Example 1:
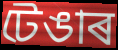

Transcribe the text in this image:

টেঙাৰ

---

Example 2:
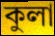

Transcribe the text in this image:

কুলা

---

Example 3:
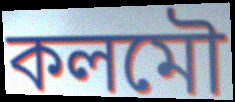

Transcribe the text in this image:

কলমৌ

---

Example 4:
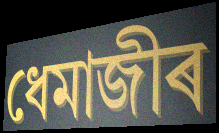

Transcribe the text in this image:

ধেমাজীৰ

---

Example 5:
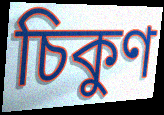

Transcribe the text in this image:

চিকুণ